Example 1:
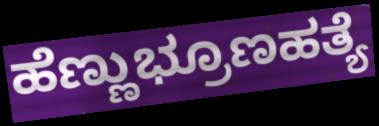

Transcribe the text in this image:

ಹೆಣ್ಣುಭ್ರೂಣಹತ್ಯೆ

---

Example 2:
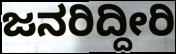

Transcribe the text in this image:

ಜನರಿದ್ದೀರಿ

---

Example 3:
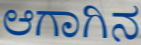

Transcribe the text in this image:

ಆಗಾಗಿನ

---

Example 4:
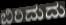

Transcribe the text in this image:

ಬಿರಿದುದು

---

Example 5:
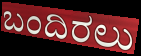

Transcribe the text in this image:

ಬಂದಿರಲು